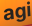
agi